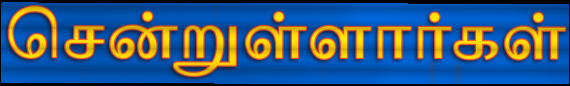
சென்றுள்ளார்கள்